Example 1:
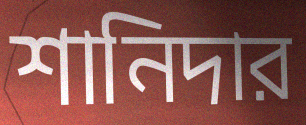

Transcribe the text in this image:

শানিদার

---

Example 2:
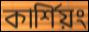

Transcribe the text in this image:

কার্শিয়ং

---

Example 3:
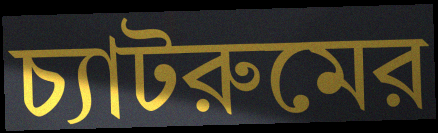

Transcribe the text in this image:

চ্যাটরুমের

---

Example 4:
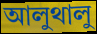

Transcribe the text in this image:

আলুথালু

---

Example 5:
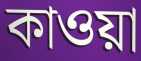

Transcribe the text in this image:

কাওয়া